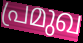
പ്രമുഖ